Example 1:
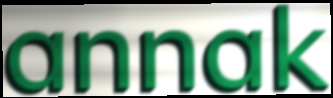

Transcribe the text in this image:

annak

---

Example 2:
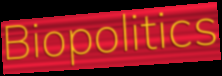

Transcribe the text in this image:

Biopolitics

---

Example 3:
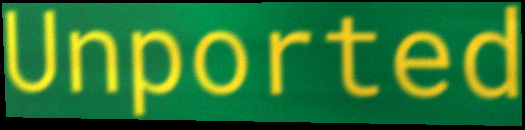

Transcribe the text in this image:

Unported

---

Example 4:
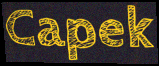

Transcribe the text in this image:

Capek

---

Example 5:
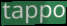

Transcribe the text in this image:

tappo